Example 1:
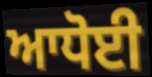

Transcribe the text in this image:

ਆਧੋਈ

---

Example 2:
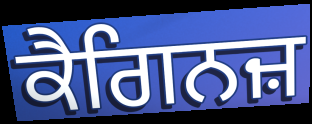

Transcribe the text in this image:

ਕੈਗਿਨਜ਼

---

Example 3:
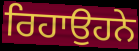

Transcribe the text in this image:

ਰਿਹਾਉਹਨੇ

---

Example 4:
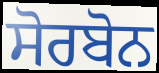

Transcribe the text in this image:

ਸੋਰਬੋਨ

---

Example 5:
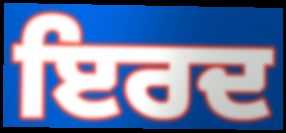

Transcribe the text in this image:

ਇਰਦ